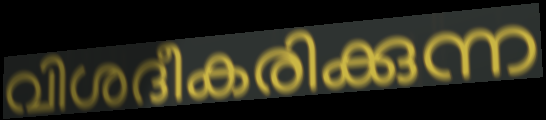
വിശദീകരിക്കുന്ന